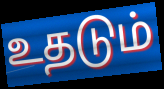
உதடும்